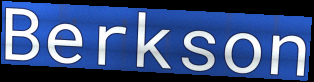
Berkson